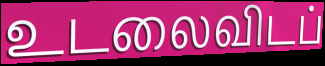
உடலைவிடப்